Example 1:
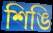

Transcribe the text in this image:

শিঙি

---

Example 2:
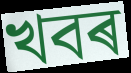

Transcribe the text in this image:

খবৰ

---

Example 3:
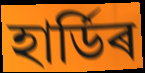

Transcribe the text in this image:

হাৰ্ডিৰ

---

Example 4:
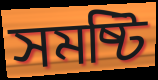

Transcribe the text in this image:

সমষ্টি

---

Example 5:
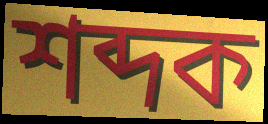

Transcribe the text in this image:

শব্দক